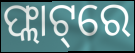
ଫ୍ଲାଟ୍‌ରେ